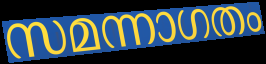
സമന്നാഗതം